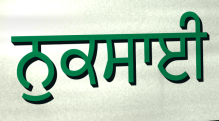
ਨੁਕਸਾਈ